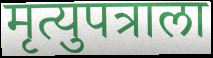
मृत्युपत्राला